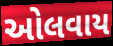
ઓલવાય